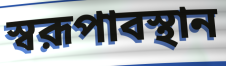
স্বরূপাবস্থান